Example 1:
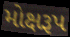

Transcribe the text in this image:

મોક્ષરૂપ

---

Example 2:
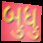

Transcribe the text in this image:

બુધુ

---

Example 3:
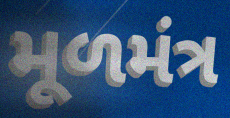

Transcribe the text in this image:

મૂળમંત્ર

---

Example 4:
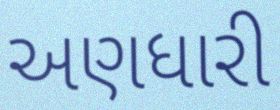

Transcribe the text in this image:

અણધારી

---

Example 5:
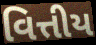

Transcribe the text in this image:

વિત્તીય